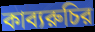
কাব্যরুচির